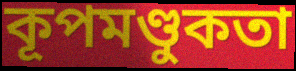
কূপমণ্ডুকতা